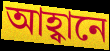
আহ্বানে